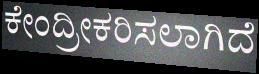
ಕೇಂದ್ರೀಕರಿಸಲಾಗಿದೆ